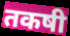
तकषी